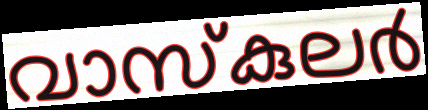
വാസ്കുലർ